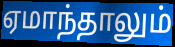
ஏமாந்தாலும்